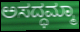
ಅಸದ್ಧಮ್ಮಾ